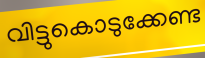
വിട്ടുകൊടുക്കേണ്ട